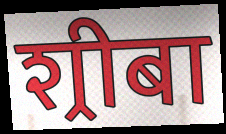
श्रीबा